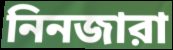
নিনজারা